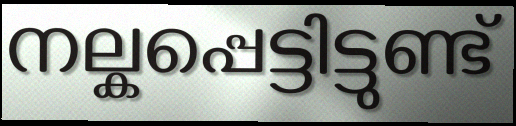
നല്കപ്പെട്ടിട്ടുണ്ട്